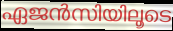
ഏജൻസിയിലൂടെ